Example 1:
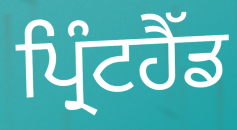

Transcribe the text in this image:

ਪ੍ਰਿੰਟਹੈੱਡ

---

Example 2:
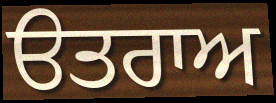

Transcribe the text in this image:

ੳਤਰਾਅ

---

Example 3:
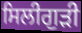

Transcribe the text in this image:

ਸਿਲੀਗੁੜੀ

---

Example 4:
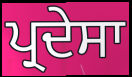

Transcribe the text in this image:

ਪ੍ਰਦੇਸਾ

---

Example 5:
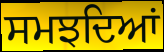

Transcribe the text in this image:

ਸਮਝਦਿਆਂ